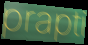
prapti